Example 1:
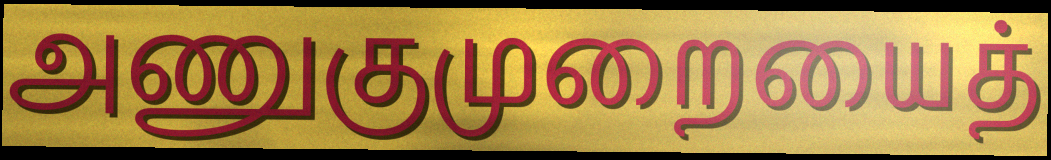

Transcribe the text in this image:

அணுகுமுறையைத்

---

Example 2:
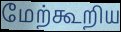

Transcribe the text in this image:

மேற்கூறிய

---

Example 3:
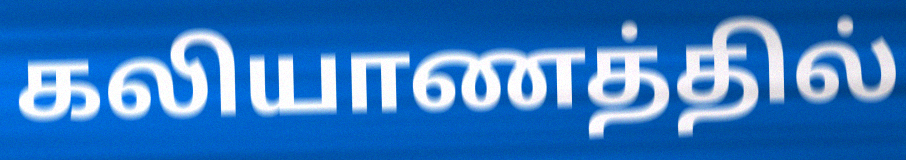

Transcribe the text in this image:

கலியாணத்தில்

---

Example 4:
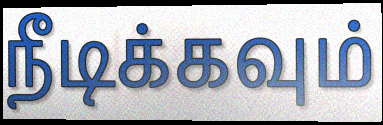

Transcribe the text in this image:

நீடிக்கவும்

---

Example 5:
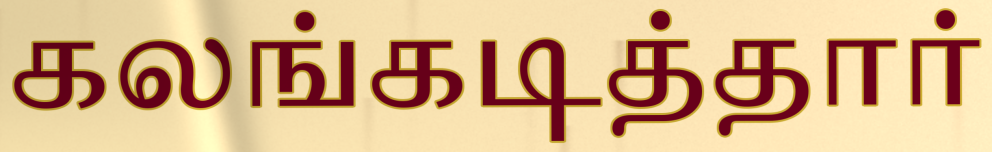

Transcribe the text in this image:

கலங்கடித்தார்